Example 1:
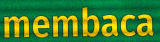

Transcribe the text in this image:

membaca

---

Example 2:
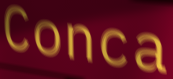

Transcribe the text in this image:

Conca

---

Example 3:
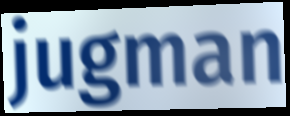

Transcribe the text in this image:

jugman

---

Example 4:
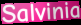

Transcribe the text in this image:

Salvinia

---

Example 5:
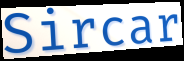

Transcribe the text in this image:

Sircar